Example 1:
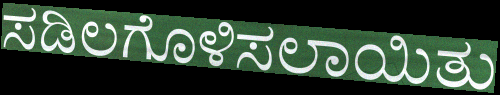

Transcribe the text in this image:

ಸಡಿಲಗೊಳಿಸಲಾಯಿತು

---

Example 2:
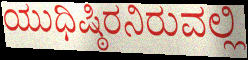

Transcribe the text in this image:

ಯುಧಿಷ್ಠಿರನಿರುವಲ್ಲಿ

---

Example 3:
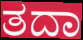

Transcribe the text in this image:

ತದಾ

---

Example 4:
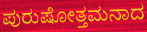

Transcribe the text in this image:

ಪುರುಷೋತ್ತಮನಾದ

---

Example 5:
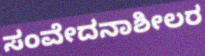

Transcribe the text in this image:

ಸಂವೇದನಾಶೀಲರ